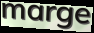
marge